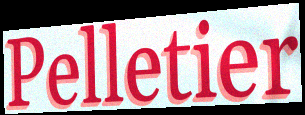
Pelletier